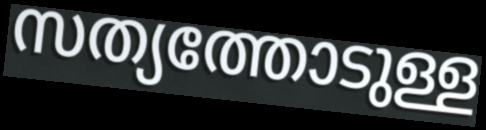
സത്യത്തോടുള്ള